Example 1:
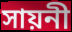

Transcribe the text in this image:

সায়নী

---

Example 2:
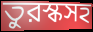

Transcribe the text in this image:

তুরস্কসহ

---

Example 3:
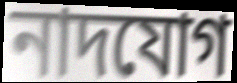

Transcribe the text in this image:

নাদযোগ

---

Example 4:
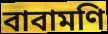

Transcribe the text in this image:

বাবামণি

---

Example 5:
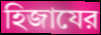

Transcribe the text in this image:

হিজাযের